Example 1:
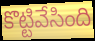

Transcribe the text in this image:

కొట్టివేసింది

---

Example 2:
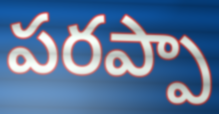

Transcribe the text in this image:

పరప్పా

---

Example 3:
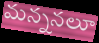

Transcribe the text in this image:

మన్ననలూ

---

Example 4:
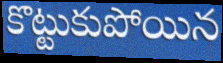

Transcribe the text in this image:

కొట్టుకుపోయిన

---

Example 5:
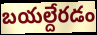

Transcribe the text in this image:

బయల్దేరడం